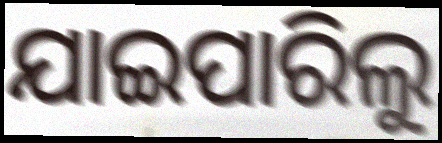
ଯାଇପାରିଲୁ